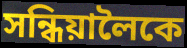
সন্ধিয়ালৈকে